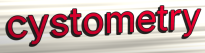
cystometry